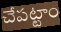
చేపట్టాం